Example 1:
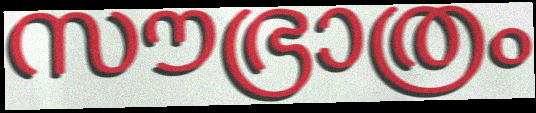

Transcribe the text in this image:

സൗഭ്രാത്രം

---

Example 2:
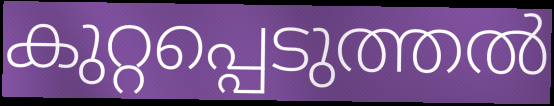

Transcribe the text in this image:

കുറ്റപ്പെടുത്തൽ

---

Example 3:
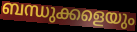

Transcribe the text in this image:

ബന്ധുക്കളെയും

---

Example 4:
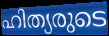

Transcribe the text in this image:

ഹിത്യരുടെ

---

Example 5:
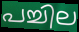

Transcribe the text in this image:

പച്ചില